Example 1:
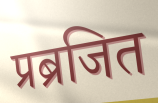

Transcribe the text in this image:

प्रब्रजित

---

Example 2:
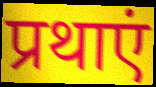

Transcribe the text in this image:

प्रथाएं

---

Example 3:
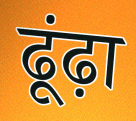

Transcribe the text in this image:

ढूंढ़ा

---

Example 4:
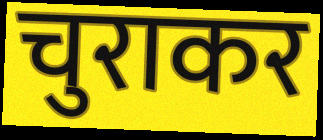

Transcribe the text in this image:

चुराकर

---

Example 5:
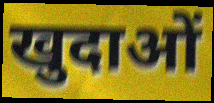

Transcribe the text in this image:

खुदाओं